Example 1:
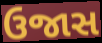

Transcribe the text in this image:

ઉજાસ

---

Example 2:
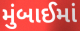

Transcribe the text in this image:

મુંબાઈમાં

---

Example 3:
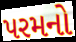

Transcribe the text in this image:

પરમનો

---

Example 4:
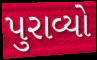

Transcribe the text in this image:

પુરાવ્યો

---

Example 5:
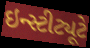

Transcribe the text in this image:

ઇન્સ્ટીટ્યૂટે